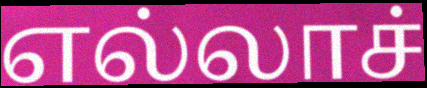
எல்லாச்